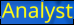
Analyst